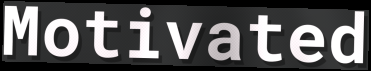
Motivated